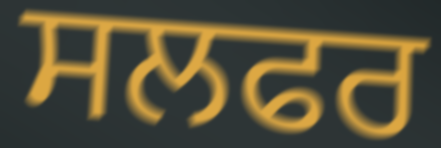
ਸਲਫਰ